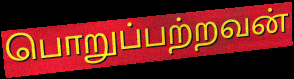
பொறுப்பற்றவன்